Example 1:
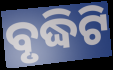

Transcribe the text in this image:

ବୃଦ୍ଧିଟି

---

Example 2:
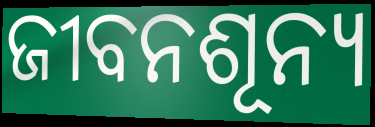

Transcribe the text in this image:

ଜୀବନଶୂନ୍ୟ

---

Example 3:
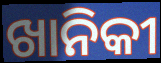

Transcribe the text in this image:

ଖାନିକୀ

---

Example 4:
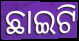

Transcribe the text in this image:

ଛାଇଟି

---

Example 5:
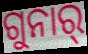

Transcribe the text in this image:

ଗୁନାର୍